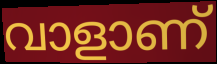
വാളാണ്